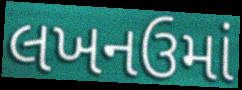
લખનઉમાં